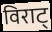
विराट्